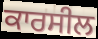
ਕਾਰਸੀਲ